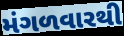
મંગળવારથી